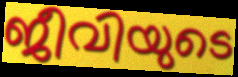
ജീവിയുടെ